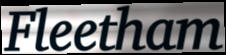
Fleetham